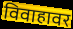
विवाहावर